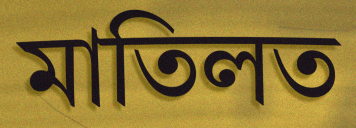
মাতিলত